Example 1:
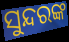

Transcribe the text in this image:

ସୁନ୍ଦରଙ୍କ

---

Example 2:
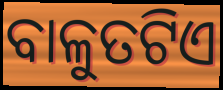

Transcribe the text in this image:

ବାଳୁତଟିଏ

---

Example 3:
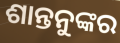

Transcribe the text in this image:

ଶାନ୍ତନୁଙ୍କର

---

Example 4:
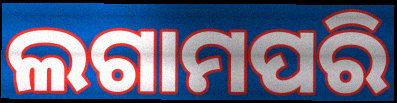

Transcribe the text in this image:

ଲଗାମପରି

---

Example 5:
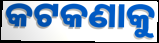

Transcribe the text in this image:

କଟକଣାକୁ